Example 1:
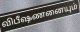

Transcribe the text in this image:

விபீஷணனையும்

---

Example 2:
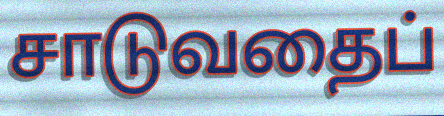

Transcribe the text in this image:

சாடுவதைப்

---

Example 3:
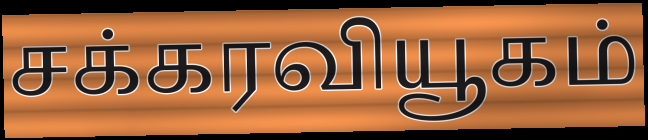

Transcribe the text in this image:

சக்கரவியூகம்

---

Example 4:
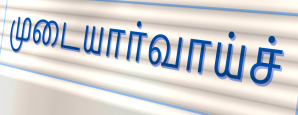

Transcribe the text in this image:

முடையார்வாய்ச்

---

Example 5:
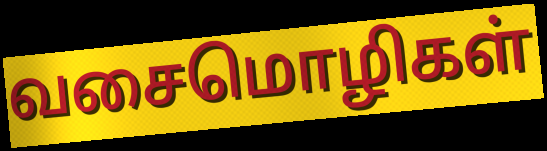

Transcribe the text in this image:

வசைமொழிகள்